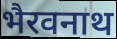
भैरवनाथ